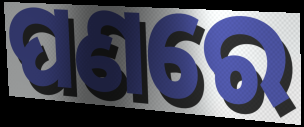
ପଣରେ